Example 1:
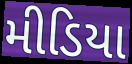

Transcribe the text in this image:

મીડિયા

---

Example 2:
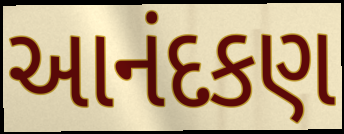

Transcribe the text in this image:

આનંદકણ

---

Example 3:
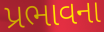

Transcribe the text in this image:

પ્રભાવના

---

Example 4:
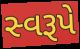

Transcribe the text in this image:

સ્વરૂપે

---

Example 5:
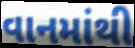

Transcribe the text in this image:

વાનમાંથી